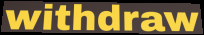
withdraw